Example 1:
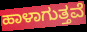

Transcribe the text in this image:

ಹಾಳಾಗುತ್ತವೆ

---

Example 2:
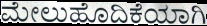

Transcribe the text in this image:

ಮೇಲುಹೊದಿಕೆಯಾಗಿ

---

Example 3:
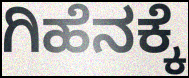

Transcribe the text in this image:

ಗಿಹೆನಕ್ಕೆ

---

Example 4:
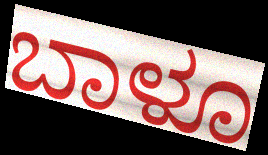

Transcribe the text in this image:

ಬಾಳೂ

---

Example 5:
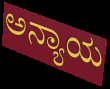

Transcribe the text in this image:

ಅನ್ಯಾಯ